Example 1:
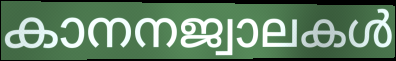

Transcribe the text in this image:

കാനനജ്വാലകൾ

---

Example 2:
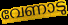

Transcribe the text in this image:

വേണാടു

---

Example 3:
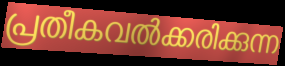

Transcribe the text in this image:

പ്രതീകവൽക്കരിക്കുന്ന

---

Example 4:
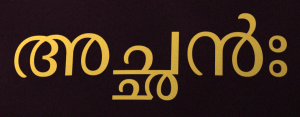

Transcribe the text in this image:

അച്ഛൻഃ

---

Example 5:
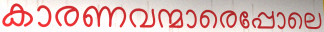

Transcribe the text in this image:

കാരണവന്മാരെപ്പോലെ